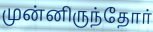
முன்னிருந்தோர்